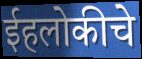
ईहलोकीचे